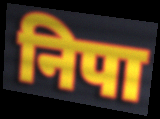
निपा